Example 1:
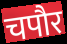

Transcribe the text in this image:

चपौर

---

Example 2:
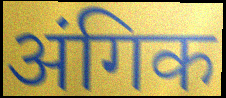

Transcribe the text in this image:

अंगिक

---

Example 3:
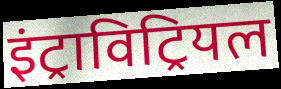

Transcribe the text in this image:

इंट्राविट्रियल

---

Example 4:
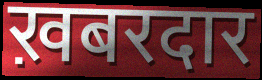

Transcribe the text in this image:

ख़बरदार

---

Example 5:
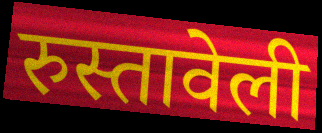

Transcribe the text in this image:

रुस्तावेली